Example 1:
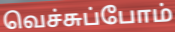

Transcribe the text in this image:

வெச்சுப்போம்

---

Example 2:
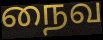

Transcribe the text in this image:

நைவ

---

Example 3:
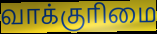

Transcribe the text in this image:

வாக்குரிமை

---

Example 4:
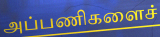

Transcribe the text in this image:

அப்பணிகளைச்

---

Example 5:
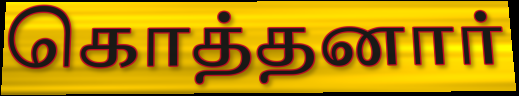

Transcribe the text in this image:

கொத்தனார்